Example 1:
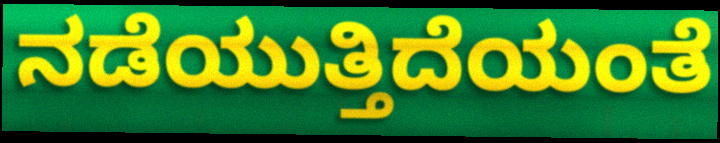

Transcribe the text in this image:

ನಡೆಯುತ್ತಿದೆಯಂತೆ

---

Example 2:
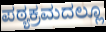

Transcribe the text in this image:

ಪಠ್ಯಕ್ರಮದಲ್ಲೂ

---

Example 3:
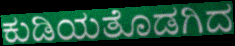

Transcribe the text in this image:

ಕುಡಿಯತೊಡಗಿದ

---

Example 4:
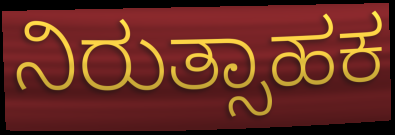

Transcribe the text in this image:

ನಿರುತ್ಸಾಹಕ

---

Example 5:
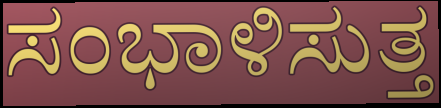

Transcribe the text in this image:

ಸಂಭಾಳಿಸುತ್ತ